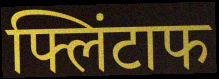
फ्लिंटाफ